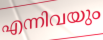
എന്നിവയും